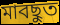
মাবছুত